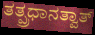
ತತ್ಪ್ರಧಾನತ್ವಾತ್